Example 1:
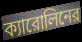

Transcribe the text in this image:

ক্যারোলিনের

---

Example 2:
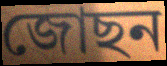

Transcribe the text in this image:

জোছন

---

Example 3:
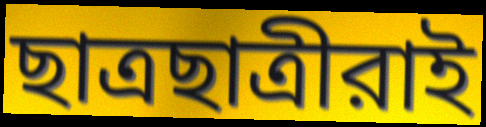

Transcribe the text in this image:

ছাত্রছাত্রীরাই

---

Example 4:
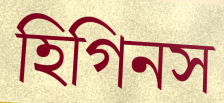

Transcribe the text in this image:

হিগিনস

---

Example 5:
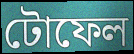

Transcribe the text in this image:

টোফেল